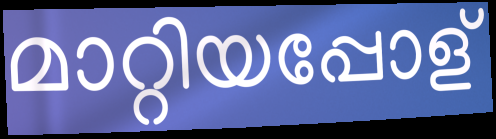
മാറ്റിയപ്പോള്